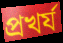
প্রখর্য